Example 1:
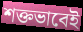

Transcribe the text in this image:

শক্তভাবেই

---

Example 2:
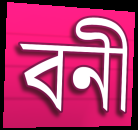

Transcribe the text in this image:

বনী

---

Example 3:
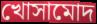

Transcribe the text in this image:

খোসামোদ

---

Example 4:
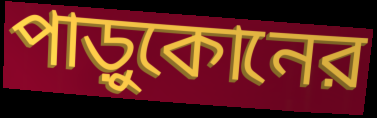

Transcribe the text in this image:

পাড়ুকোনের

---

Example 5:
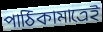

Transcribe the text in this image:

পাঠিকামাত্রেই